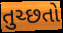
તુચ્છતો